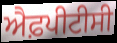
ਐਫ਼ਪੀਟੀਸੀ